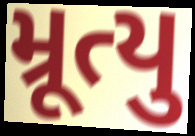
મ્રૂત્યુ